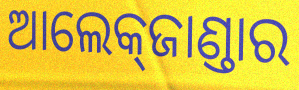
ଆଲେକ୍‌ଜାଣ୍ଡାର